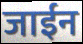
जाईन